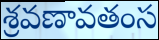
శ్రవణావతంస